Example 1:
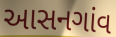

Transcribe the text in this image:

આસનગાંવ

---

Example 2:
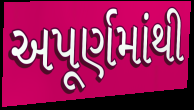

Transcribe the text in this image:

અપૂર્ણમાંથી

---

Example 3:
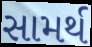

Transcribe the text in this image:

સામર્થ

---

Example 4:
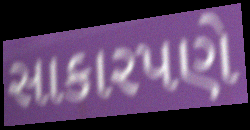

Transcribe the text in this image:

સાકારપણે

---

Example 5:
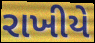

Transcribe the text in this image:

રાખીયે